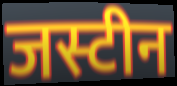
जस्टीन